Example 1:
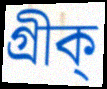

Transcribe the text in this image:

গ্রীক্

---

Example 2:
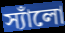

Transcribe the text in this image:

স্যাঁলো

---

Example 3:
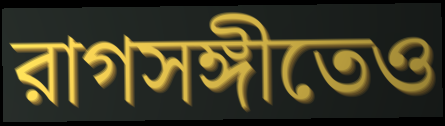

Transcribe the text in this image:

রাগসঙ্গীতেও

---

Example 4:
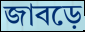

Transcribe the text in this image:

জাবড়ে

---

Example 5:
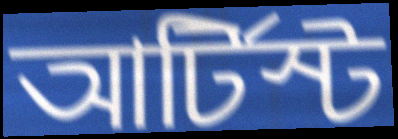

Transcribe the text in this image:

আর্টিস্ট